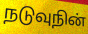
நடுவுநின்